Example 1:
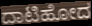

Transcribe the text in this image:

ದಾಟಿಹೋದ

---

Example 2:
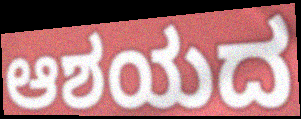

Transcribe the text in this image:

ಆಶಯದ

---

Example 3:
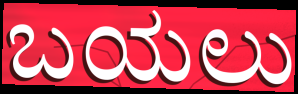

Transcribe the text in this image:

ಬಯಲು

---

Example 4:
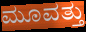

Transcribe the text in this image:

ಮೂವತ್ತು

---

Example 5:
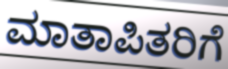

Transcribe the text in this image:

ಮಾತಾಪಿತರಿಗೆ